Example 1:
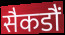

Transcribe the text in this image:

सैकडौं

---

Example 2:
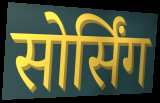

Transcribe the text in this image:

सोर्सिंग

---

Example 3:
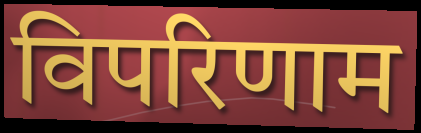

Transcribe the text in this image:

विपरिणाम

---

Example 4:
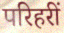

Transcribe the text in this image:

परिहरीं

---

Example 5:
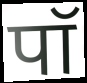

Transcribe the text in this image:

पॉ